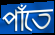
পাঁতে